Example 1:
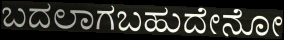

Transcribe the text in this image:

ಬದಲಾಗಬಹುದೇನೋ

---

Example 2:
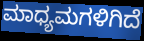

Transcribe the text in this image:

ಮಾಧ್ಯಮಗಳಿಗಿದೆ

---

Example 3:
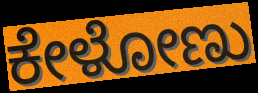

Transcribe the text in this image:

ಕೇಳೋಣು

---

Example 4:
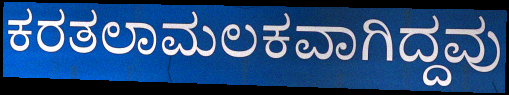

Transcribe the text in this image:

ಕರತಲಾಮಲಕವಾಗಿದ್ದವು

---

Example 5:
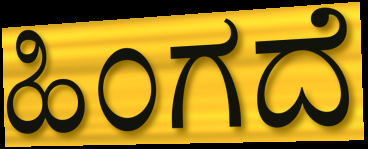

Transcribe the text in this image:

ಹಿಂಗದೆ